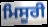
ਮਿਸੂਰੀ